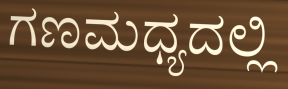
ಗಣಮಧ್ಯದಲ್ಲಿ